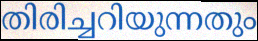
തിരിച്ചറിയുന്നതും